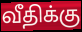
வீதிக்கு